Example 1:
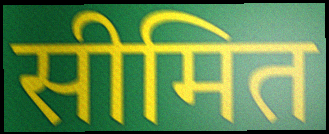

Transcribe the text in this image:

सीमित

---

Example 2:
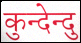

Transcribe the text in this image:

कुन्देन्दु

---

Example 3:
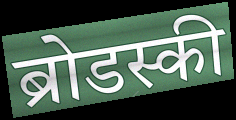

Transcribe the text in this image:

ब्रोडस्की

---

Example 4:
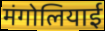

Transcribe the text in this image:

मंगोलियाई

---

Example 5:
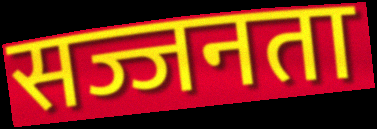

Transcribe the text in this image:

सज्जनता